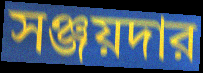
সঞ্জয়দার